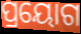
ପ୍ରୟୋଗ